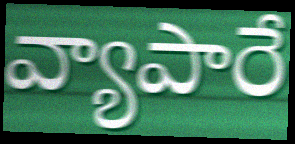
వ్యాపారే